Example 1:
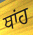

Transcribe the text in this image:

ਥਾਂਹ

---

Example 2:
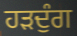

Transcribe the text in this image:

ਹੜਦੁੰਗ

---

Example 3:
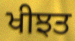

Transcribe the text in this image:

ਖੀਝਤ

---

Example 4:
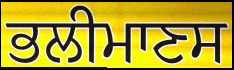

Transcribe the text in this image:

ਭਲੀਮਾਣਸ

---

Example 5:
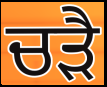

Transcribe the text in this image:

ਚੜੈ